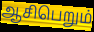
ஆசிபெறும்